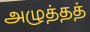
அழுத்தத்